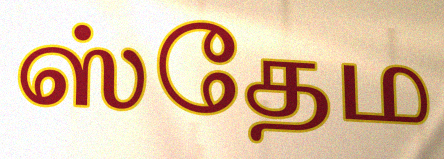
ஸ்தேம